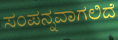
ಸಂಪನ್ನವಾಗಲಿದೆ